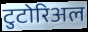
टुटोरिअल